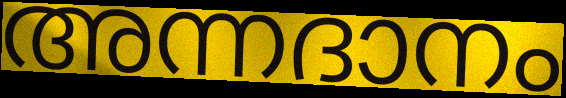
അന്നദാനം